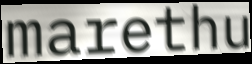
marethu